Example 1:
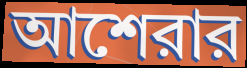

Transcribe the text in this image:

আশেরার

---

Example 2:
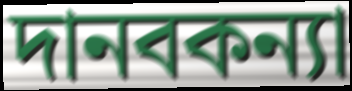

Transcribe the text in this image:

দানবকন্যা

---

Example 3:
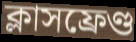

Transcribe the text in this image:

ক্লাসফ্রেণ্ড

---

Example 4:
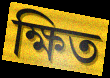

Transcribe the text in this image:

ক্ষিত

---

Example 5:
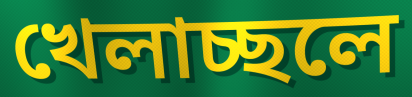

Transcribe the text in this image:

খেলাচ্ছলে